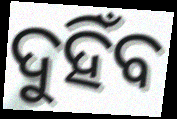
ଦୁହିଁବ